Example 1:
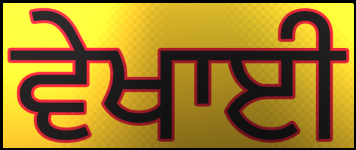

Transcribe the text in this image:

ਵੇਖਾਈ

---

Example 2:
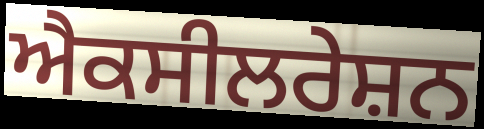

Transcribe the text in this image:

ਐਕਸੀਲਰੇਸ਼ਨ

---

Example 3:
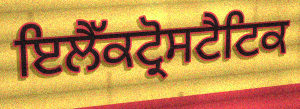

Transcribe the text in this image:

ਇਲੈੱਕਟ੍ਰੋਸਟੈਟਿਕ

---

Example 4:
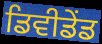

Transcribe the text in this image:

ਡਿਵੀਡੇਂਡ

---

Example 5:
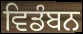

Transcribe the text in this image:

ਵਿਡੰਬਨ